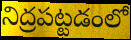
నిద్రపట్టడంలో